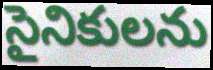
సైనికులను